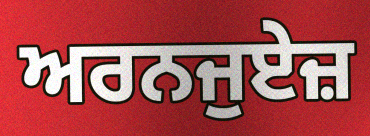
ਅਰਨਜੁਏਜ਼